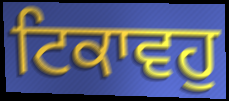
ਟਿਕਾਵਹੁ